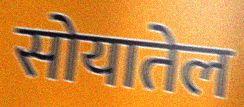
सोयातेल